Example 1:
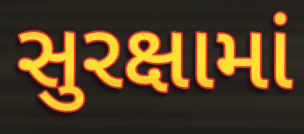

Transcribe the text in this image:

સુરક્ષામાં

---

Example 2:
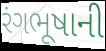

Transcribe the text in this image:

રંગભૂષાની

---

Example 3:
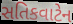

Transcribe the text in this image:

સતિકવાટેન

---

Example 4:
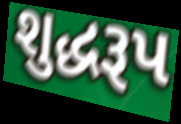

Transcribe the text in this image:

શુદ્ધરૂપ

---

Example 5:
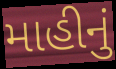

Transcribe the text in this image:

માહીનું